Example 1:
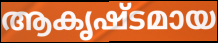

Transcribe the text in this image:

ആകൃഷ്ടമായ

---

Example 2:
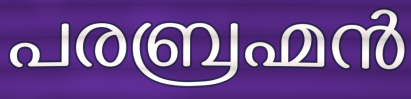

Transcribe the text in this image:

പരബ്രഹ്മൻ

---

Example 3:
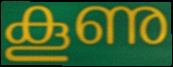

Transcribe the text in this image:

കൂണു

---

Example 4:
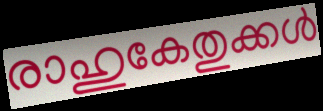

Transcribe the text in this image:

രാഹുകേതുക്കൾ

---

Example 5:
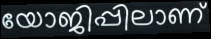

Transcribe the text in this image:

യോജിപ്പിലാണ്